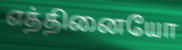
எத்தினையோ